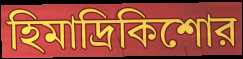
হিমাদ্রিকিশোর